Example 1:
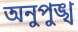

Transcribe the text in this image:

অনুপুঙ্খ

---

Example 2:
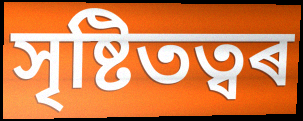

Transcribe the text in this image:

সৃষ্টিতত্বৰ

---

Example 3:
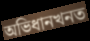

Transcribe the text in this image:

অভিধানখনত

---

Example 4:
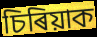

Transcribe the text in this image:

চিৰিয়াক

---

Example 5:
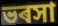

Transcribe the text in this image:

ভৰসা